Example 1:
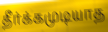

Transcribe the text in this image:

தீர்க்கமுடியாத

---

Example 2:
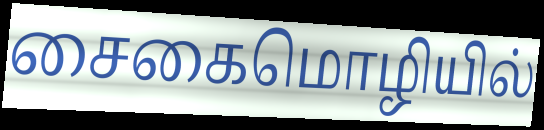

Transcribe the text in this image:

சைகைமொழியில்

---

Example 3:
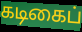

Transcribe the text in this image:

கடிகைப்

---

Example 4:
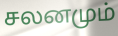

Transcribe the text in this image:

சலனமும்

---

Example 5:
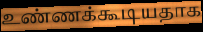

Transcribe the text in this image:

உண்ணக்கூடியதாக